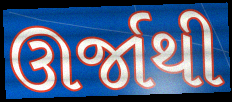
ઊર્જાથી